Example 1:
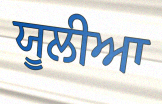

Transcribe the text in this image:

ਯੂਲੀਆ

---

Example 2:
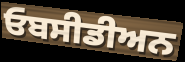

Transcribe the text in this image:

ਓਬਸੀਡੀਅਨ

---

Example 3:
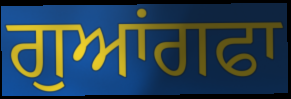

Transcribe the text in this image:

ਗੁਆਂਗਫਾ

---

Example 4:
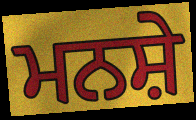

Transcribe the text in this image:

ਮਨਸ਼ੇ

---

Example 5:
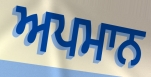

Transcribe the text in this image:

ਅਪਮਾਨ